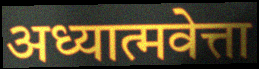
अध्यात्मवेत्ता